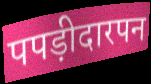
पपड़ीदारपन